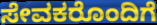
ಸೇವಕರೊಂದಿಗೆ